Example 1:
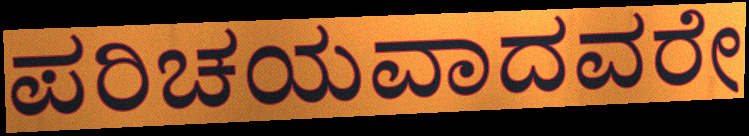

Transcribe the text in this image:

ಪರಿಚಯವಾದವರೇ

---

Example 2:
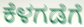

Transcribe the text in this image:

ಕೆಳಗಡೆಗೆ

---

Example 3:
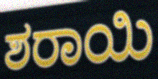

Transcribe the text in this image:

ಶರಾಯಿ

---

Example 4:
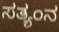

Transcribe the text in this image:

ಸತ್ಯಂನ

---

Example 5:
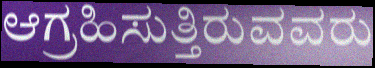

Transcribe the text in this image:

ಆಗ್ರಹಿಸುತ್ತಿರುವವರು